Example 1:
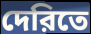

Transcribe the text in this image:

দেরিতে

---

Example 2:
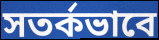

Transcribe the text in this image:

সতর্কভাবে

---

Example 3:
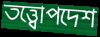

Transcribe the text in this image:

তত্ত্বোপদেশ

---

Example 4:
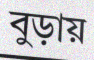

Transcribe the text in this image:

বুড়ায়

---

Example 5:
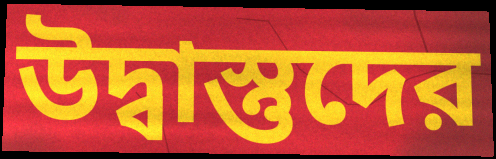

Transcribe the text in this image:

উদ্বাস্তুদের